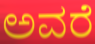
ಅವರೆ